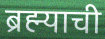
ब्रह्म्याची